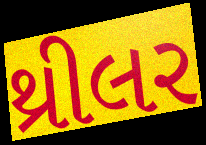
થ્રીલર